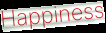
Happiness